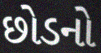
છોડનો